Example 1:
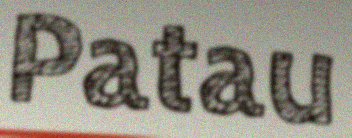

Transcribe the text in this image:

Patau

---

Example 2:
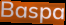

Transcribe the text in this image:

Baspa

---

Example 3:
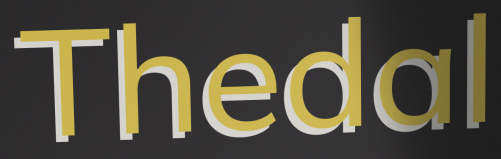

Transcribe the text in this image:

Thedal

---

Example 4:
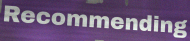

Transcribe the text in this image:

Recommending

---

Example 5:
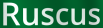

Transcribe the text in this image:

Ruscus